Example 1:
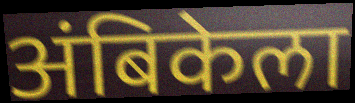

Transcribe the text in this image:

अंबिकेला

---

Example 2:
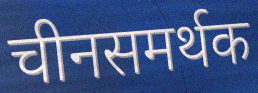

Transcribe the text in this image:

चीनसमर्थक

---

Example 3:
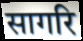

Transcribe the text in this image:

सागरि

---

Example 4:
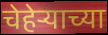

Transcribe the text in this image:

चेहेऱ्याच्या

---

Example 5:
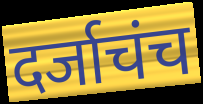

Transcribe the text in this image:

दर्जाचंच